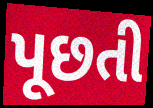
પૂછતી